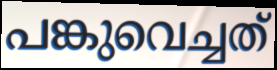
പങ്കുവെച്ചത്